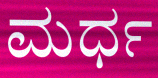
ಮರ್ಧ